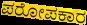
ಪರೋಪಕಾರ